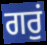
ਗਰੁਂ